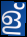
ള്